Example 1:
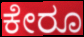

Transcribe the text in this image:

ಕೇರೂ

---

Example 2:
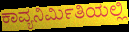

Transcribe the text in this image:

ಕಾವ್ಯನಿರ್ಮಿತಿಯಲ್ಲಿ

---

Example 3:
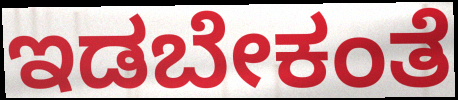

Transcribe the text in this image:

ಇಡಬೇಕಂತೆ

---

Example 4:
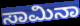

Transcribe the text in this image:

ಸಾಮಿನಾ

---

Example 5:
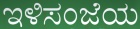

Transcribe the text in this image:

ಇಳಿಸಂಜೆಯ